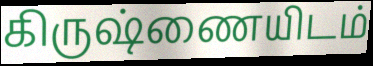
கிருஷ்ணையிடம்